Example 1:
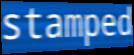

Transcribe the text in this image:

stamped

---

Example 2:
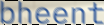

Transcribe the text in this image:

bheent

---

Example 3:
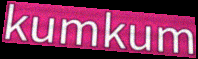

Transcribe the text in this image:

kumkum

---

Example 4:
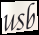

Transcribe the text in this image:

usb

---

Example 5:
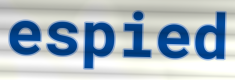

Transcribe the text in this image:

espied